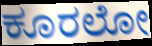
ಕೂರಲೋ